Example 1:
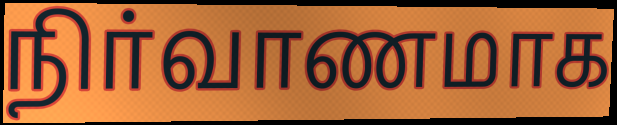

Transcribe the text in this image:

நிர்வாணமாக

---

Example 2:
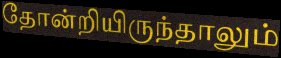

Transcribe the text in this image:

தோன்றியிருந்தாலும்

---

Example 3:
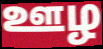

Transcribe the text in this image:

ஊழ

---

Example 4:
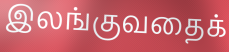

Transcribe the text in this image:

இலங்குவதைக்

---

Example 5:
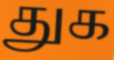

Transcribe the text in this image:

துக